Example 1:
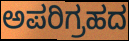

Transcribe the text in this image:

ಅಪರಿಗ್ರಹದ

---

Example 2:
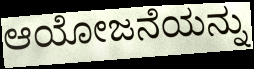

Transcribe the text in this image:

ಆಯೋಜನೆಯನ್ನು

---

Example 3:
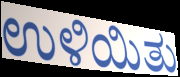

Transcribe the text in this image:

ಉಳಿಯಿತು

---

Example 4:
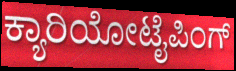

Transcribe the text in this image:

ಕ್ಯಾರಿಯೋಟೈಪಿಂಗ್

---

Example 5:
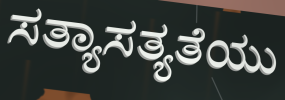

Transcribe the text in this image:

ಸತ್ಯಾಸತ್ಯತೆಯು